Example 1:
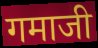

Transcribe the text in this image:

गमाजी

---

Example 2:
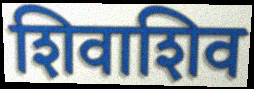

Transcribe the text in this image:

शिवाशिव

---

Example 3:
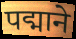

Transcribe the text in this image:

पद्माने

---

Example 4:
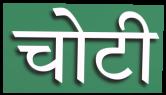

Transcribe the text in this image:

चोटी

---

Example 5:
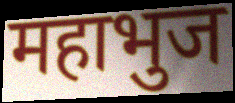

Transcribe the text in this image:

महाभुज